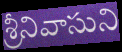
శ్రీనివాసుని